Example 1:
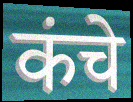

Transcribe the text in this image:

कंचे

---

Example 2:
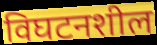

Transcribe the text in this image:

विघटनशील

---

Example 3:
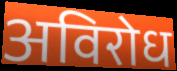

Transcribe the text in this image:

अविरोध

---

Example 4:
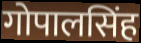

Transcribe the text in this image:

गोपालसिंह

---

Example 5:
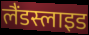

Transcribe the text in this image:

लैंडस्लाइड